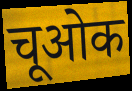
चूओक